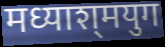
मध्याश्मयुग